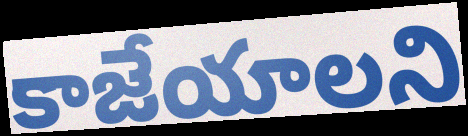
కాజేయాలని